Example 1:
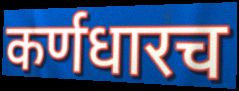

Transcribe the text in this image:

कर्णधारच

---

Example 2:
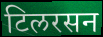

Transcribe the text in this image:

टिलरसन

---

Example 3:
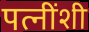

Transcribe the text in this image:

पत्नींशी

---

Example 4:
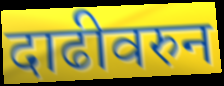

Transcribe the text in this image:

दाढीवरुन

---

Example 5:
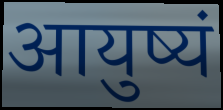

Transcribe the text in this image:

आयुष्यं